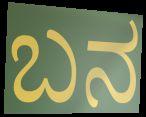
ಬನ